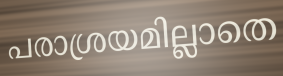
പരാശ്രയമില്ലാതെ